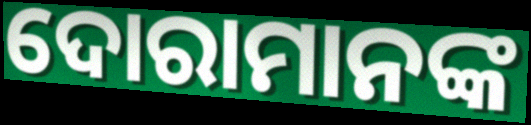
ଦୋରାମାନଙ୍କ